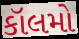
કૉલમો